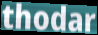
thodar